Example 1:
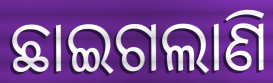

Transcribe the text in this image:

ଛାଇଗଲାଣି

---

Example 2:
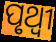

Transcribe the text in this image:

ପୃଥ୍ଵୀ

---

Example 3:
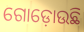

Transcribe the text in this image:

ଗୋଡ଼ୋଉଛି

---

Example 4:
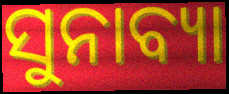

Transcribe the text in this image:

ସୁନାବ୍ୟା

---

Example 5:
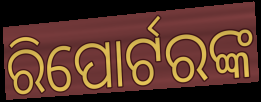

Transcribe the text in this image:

ରିପୋର୍ଟରଙ୍କ